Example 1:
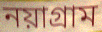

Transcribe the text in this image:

নয়াগ্রাম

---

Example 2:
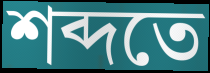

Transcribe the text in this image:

শব্দতে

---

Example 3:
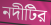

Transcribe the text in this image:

নদীটির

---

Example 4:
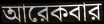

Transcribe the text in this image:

আরেকবার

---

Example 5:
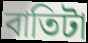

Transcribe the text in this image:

বাতিটা